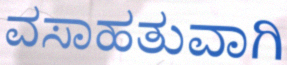
ವಸಾಹತುವಾಗಿ